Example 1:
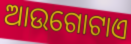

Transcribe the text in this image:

ଆଉଗୋଟାଏ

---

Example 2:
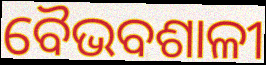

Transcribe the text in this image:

ବୈଭବଶାଳୀ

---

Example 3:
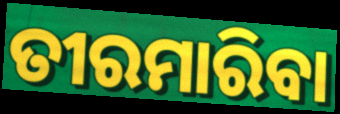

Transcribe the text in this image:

ତୀରମାରିବା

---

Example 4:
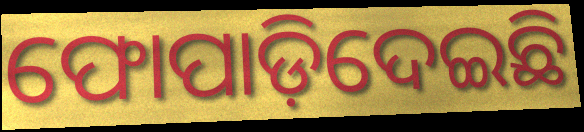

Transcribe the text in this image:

ଫୋପାଡ଼ିଦେଇଛି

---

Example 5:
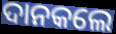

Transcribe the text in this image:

ଦାନକଲେ